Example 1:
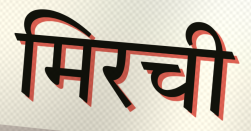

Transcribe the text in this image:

मिरची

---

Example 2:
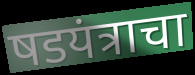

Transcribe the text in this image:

षडयंत्राचा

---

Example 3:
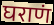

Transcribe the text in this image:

घराणं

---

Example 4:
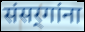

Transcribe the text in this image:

संसर्गांना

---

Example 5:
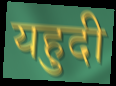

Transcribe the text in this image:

यहुदी